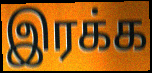
இரக்க